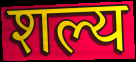
शल्य